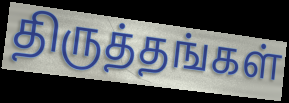
திருத்தங்கள்